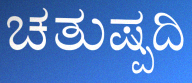
ಚತುಷ್ಪದಿ